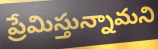
ప్రేమిస్తున్నామని